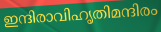
ഇന്ദിരാവിഹൃതിമന്ദിരം